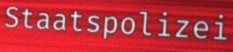
Staatspolizei